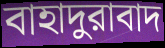
বাহাদুরাবাদ